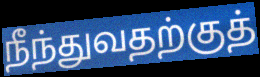
நீந்துவதற்குத்